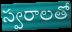
స్వరాలతో